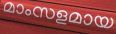
മാംസളമായ